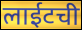
लाईटची